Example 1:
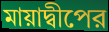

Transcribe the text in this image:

মায়াদ্বীপের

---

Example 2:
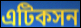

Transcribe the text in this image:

এটিকসন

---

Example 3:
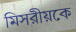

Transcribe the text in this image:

মিসরীয়কে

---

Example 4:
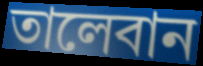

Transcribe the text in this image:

তালেবান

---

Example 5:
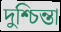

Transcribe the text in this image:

দুশ্চিন্তা